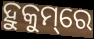
ହୁକୁମ୍‌ରେ